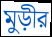
মুড়ীর